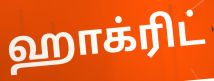
ஹாக்ரிட்